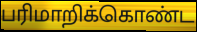
பரிமாறிக்கொண்ட